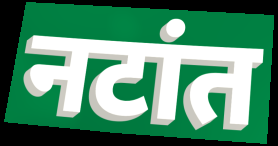
नटांत